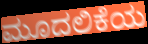
ಮೂದಲಿಕೆಯ